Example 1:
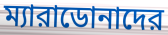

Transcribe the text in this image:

ম্যারাডোনাদের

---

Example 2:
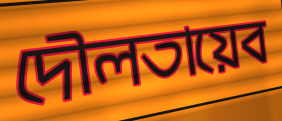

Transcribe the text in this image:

দৌলতায়েব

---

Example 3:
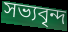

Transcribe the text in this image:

সভ্যবৃন্দ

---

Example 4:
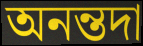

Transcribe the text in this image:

অনন্তদা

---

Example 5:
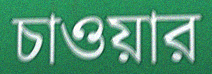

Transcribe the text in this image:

চাওয়ার